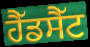
ਹੈੱਡਸੈੱਟ